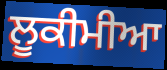
ਲੂਕੀਮੀਆ